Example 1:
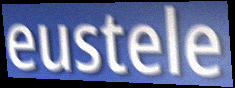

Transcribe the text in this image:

eustele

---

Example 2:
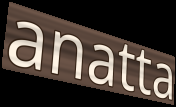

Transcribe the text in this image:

anatta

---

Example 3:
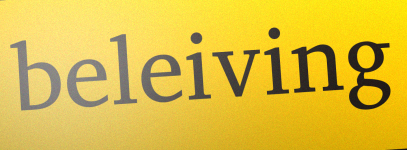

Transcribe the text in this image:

beleiving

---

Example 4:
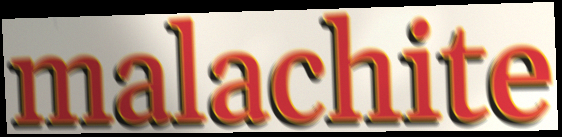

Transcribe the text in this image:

malachite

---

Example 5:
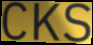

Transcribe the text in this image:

CKS